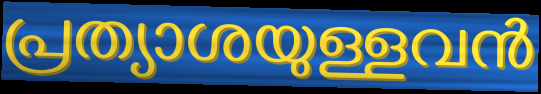
പ്രത്യാശയുള്ളവൻ